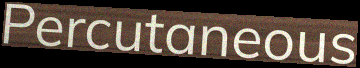
Percutaneous